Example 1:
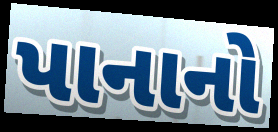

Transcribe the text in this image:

પાનાનો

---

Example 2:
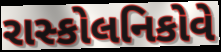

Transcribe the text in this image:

રાસ્કોલનિકોવે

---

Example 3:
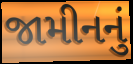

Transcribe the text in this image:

જામીનનું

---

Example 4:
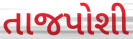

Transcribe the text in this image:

તાજપોશી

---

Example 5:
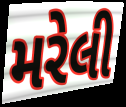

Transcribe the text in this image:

મરેલી